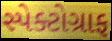
સ્પેક્ટોગ્રાફ